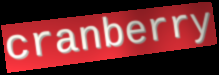
cranberry